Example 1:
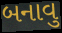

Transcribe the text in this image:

બનાવુ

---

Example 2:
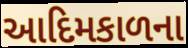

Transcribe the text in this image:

આદિમકાળના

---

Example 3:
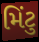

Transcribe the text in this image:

મિંટુ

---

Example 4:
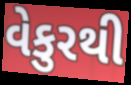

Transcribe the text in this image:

વેકુરથી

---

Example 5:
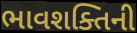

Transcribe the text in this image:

ભાવશક્તિની